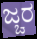
ಜ್ಚರ